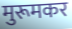
मुरूमकर